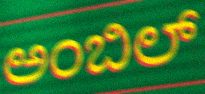
ಅಂಬಿಲ್